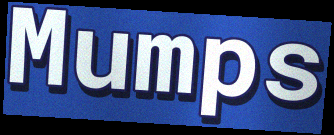
Mumps